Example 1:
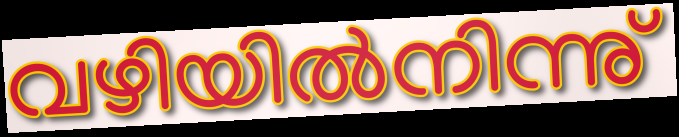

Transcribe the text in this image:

വഴിയിൽനിന്നു്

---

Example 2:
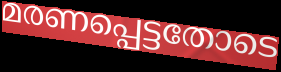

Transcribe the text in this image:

മരണപ്പെട്ടതോടെ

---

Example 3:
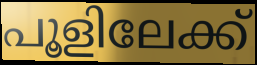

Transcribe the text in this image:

പൂളിലേക്ക്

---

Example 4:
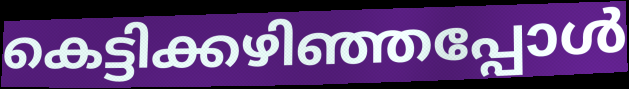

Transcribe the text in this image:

കെട്ടിക്കഴിഞ്ഞപ്പോൾ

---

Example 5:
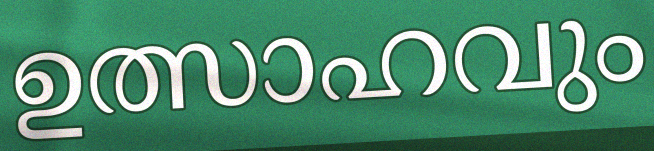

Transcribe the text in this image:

ഉത്സാഹവും